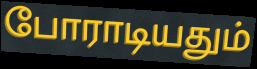
போராடியதும்